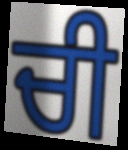
ਚੀ